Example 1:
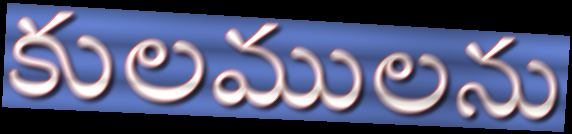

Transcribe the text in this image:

కులములను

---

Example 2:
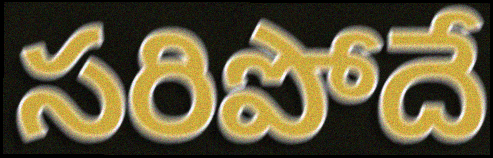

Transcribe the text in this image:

సరిపోదే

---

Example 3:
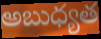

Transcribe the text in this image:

అబుధ్యత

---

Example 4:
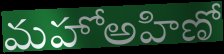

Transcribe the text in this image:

మహోఅహిణో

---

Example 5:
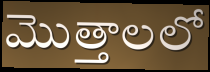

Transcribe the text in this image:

మొత్తాలలో